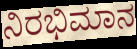
ನಿರಭಿಮಾನ